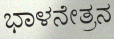
ಭಾಳನೇತ್ರನ